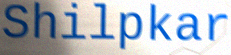
Shilpkar